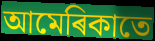
আমেৰিকাতে